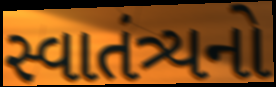
સ્વાતંત્ર્યનો